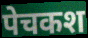
पेचकश